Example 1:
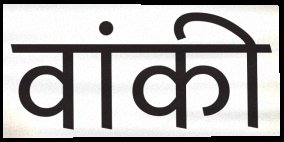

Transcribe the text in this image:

वांकी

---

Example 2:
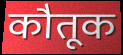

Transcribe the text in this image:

कौतूक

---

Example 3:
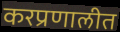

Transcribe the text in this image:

करप्रणालीत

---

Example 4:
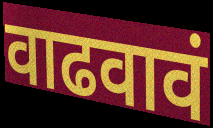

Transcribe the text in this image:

वाढवावं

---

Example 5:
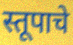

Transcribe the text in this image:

स्तूपाचे